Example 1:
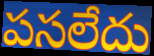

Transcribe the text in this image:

పసలేదు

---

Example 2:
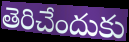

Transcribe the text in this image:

తెరిచేందుకు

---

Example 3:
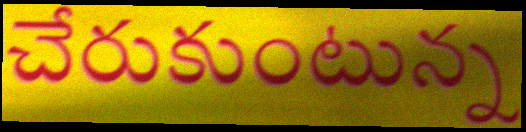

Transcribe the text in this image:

చేరుకుంటున్న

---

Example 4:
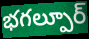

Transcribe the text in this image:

భగల్పూర్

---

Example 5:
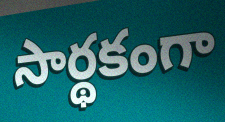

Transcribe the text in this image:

సార్థకంగా